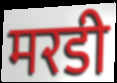
मरडी